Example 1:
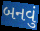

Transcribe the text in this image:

બનવું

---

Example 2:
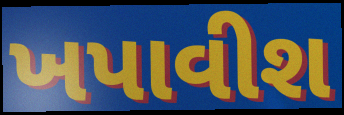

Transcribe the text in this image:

ખપાવીશ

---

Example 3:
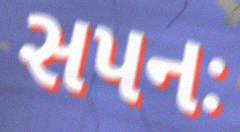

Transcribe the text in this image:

સપનઃ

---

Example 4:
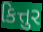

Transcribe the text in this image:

કિત્તુર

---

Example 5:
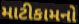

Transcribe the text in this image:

માટીકામનો